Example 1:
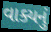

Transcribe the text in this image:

વાક્યનું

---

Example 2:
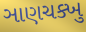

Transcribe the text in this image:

ઞાણચક્ખુ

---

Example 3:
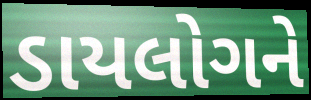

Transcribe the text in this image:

ડાયલોગને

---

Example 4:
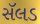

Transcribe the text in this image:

સૅલડ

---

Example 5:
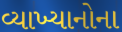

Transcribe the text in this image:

વ્યાખ્યાનોના